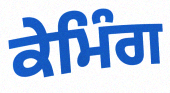
ਕੇਮਿੰਗ